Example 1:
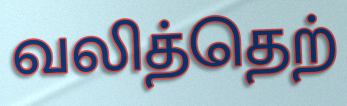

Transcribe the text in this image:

வலித்தெற்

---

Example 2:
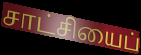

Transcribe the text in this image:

சாட்சியைப்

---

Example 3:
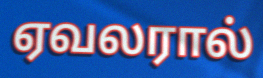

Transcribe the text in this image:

ஏவலரால்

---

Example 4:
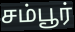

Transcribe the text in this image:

சம்பூர்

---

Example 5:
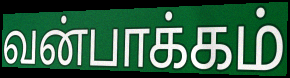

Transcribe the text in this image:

வன்பாக்கம்